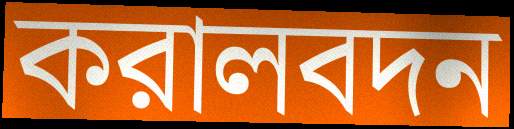
করালবদন